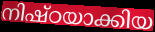
നിഷ്ഠയാക്കിയ